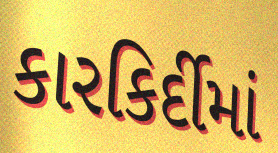
કારકિર્દીમાં